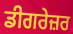
ਡੀਗਰੇਜ਼ਰ